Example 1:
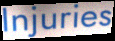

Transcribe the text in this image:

Injuries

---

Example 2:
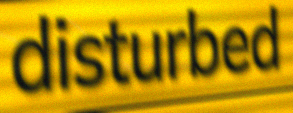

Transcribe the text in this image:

disturbed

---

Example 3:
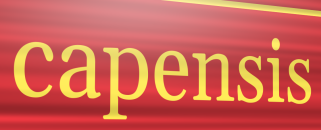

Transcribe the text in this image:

capensis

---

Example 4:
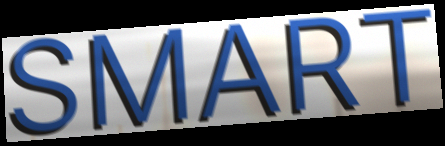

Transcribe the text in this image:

SMART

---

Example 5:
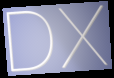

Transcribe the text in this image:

DX